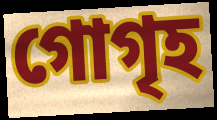
গোগৃহ